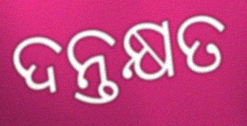
ଦନ୍ତକ୍ଷତ